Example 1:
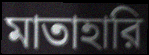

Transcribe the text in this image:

মাতাহারি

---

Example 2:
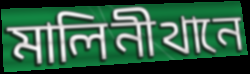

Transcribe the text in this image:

মালিনীথানে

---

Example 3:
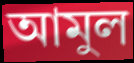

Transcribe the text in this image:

আমুল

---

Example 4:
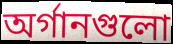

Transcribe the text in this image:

অর্গানগুলো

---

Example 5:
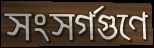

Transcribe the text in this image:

সংসর্গগুণে